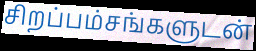
சிறப்பம்சங்களுடன்